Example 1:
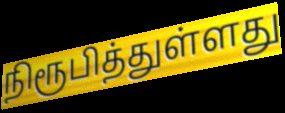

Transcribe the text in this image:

நிரூபித்துள்ளது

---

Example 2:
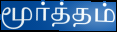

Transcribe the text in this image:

மூர்த்தம்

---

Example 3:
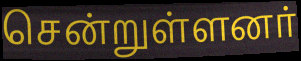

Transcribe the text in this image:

சென்றுள்ளனர்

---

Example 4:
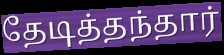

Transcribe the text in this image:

தேடித்தந்தார்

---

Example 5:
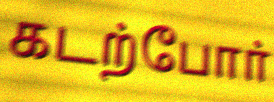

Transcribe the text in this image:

கடற்போர்